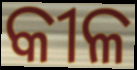
କୀଳ